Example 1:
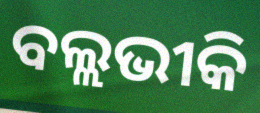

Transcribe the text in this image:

ବଲ୍ଲଭୀକି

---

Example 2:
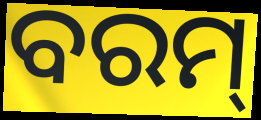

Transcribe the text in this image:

ବରମ୍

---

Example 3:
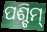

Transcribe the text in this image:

ପଶ୍ଚିମ୍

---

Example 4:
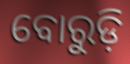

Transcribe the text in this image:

ବୋରୁଡ଼ି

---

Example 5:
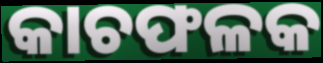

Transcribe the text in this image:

କାଚଫଳକ